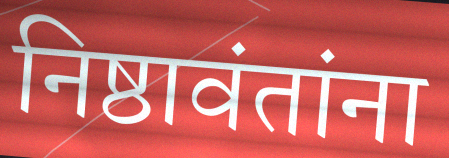
निष्ठावंतांना